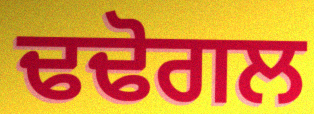
ਢਢੋਗਲ